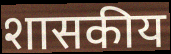
शासकीय